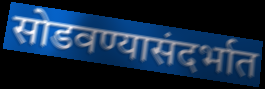
सोडवण्यासंदर्भात